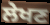
ਲੇਖਣ